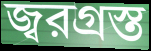
জ্বরগ্রস্ত